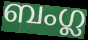
ബംഗ്ല